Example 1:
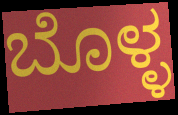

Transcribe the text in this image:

ಬೊಳ್ಳ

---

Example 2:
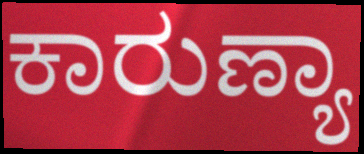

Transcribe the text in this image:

ಕಾರುಣ್ಯಾ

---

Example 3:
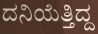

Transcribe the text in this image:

ದನಿಯೆತ್ತಿದ್ದ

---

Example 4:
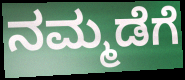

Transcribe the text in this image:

ನಮ್ಮಡೆಗೆ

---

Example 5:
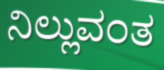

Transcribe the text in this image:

ನಿಲ್ಲುವಂತ